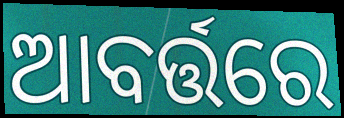
ଆବର୍ତ୍ତରେ